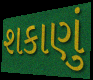
શકાણું